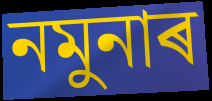
নমুনাৰ